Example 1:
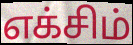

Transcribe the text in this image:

எக்சிம்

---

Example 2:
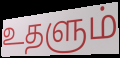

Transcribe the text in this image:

உதளும்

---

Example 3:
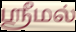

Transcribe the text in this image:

ஶ்ரீமல்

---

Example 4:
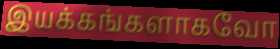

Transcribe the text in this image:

இயக்கங்களாகவோ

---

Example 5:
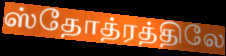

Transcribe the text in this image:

ஸ்தோத்ரத்திலே